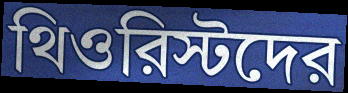
থিওরিস্টদের